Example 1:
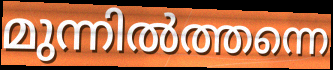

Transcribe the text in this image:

മുന്നിൽത്തന്നെ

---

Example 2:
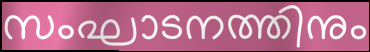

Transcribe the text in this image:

സംഘാടനത്തിനും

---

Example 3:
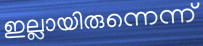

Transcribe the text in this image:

ഇല്ലായിരുന്നെന്ന്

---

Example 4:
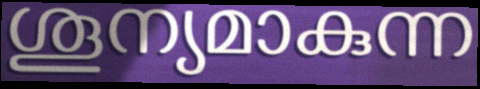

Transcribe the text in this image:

ശൂന്യമാകുന്ന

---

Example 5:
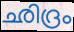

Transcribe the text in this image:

ഛിദ്രം